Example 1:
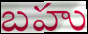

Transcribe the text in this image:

బహు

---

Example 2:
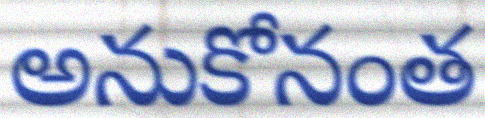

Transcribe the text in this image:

అనుకోనంత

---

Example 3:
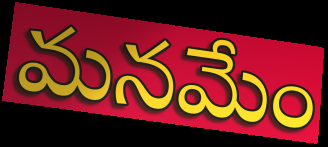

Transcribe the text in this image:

మనమేం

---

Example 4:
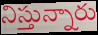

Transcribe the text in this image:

నిస్తున్నారు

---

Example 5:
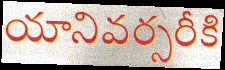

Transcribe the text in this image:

యానివర్సరీకి